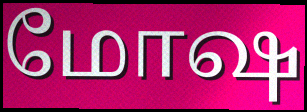
மோஷ